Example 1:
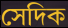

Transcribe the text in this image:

সেদিক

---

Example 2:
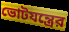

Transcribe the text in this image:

ভোটযন্ত্রের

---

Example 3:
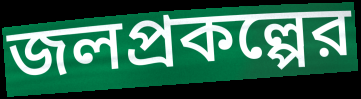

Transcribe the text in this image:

জলপ্রকল্পের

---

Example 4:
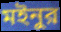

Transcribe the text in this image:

মইনুর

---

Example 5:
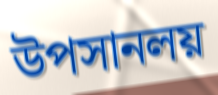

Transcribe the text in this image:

উপসানলয়